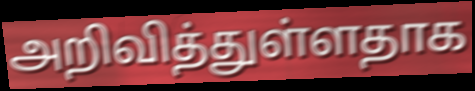
அறிவித்துள்ளதாக